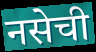
नसेची